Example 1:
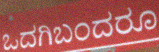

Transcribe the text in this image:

ಒದಗಿಬಂದರೂ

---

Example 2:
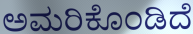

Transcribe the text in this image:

ಅಮರಿಕೊಂಡಿದೆ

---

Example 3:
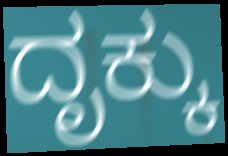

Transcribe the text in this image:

ದೃಕ್ಕು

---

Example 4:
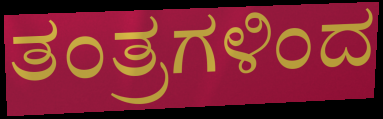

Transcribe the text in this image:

ತಂತ್ರಗಳಿಂದ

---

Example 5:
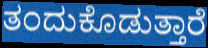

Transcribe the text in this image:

ತಂದುಕೊಡುತ್ತಾರೆ